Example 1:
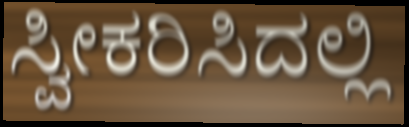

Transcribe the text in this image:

ಸ್ವೀಕರಿಸಿದಲ್ಲಿ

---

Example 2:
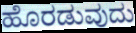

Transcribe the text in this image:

ಹೊರಡುವುದು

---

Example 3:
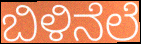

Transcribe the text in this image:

ಬಿಳಿನೆಲೆ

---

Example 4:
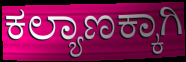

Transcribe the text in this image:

ಕಲ್ಯಾಣಕ್ಕಾಗಿ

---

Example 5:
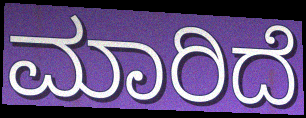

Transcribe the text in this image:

ಮಾರಿದೆ